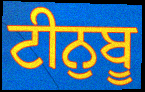
ਟੀਨੁਬੂ